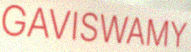
GAVISWAMY